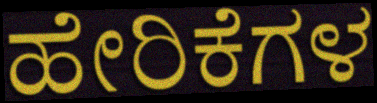
ಹೇರಿಕೆಗಳ